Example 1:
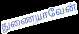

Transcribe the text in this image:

துணையாவேன்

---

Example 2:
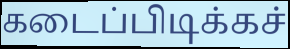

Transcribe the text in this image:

கடைப்பிடிக்கச்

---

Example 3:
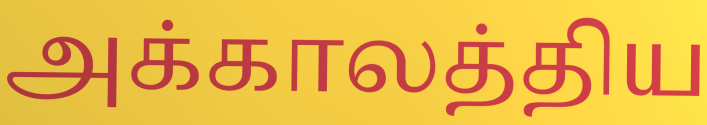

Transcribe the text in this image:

அக்காலத்திய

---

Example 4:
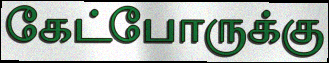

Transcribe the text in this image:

கேட்போருக்கு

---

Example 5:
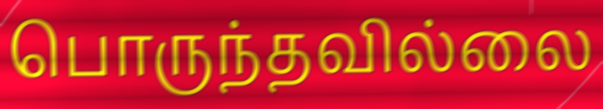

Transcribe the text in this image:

பொருந்தவில்லை